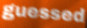
guessed